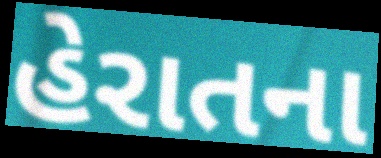
હેરાતના